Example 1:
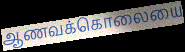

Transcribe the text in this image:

ஆணவக்கொலையை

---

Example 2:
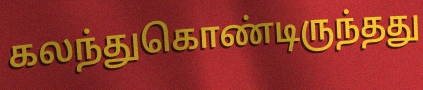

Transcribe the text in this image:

கலந்துகொண்டிருந்தது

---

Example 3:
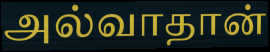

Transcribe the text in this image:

அல்வாதான்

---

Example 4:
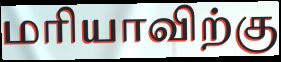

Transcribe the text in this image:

மரியாவிற்கு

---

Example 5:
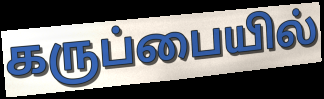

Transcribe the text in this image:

கருப்பையில்